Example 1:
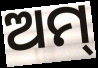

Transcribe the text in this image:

ଅମ୍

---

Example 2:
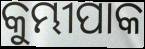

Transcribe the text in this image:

କୁମ୍ଭୀପାକ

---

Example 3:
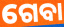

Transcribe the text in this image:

ଗେବା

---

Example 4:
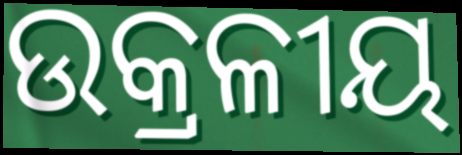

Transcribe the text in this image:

ଉକ୍ରଳୀୟ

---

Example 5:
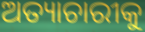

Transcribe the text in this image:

ଅତ୍ୟାଚାରୀକୁ